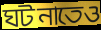
ঘটনাতেও